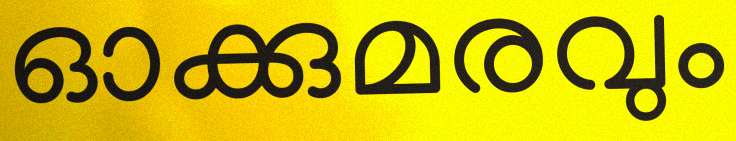
ഓക്കുമരവും